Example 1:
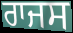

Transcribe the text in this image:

ਰਾਜਸ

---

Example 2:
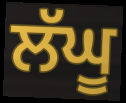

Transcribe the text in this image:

ਲੱਘੂ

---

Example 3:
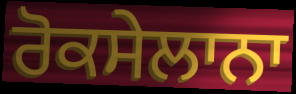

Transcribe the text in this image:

ਰੋਕਸੇਲਾਨਾ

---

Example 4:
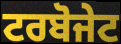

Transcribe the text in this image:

ਟਰਬੋਜੇਟ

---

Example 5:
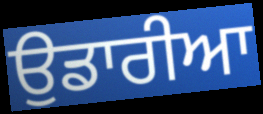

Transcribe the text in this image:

ਉਡਾਰੀਆ